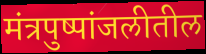
मंत्रपुष्पांजलीतील